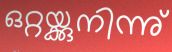
ഒറ്റയ്ക്കുനിന്നു്